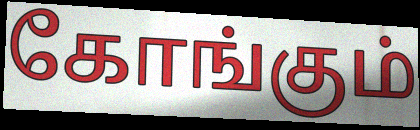
கோங்கும்